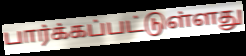
பார்க்கப்பட்டுள்ளது